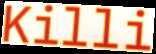
Killi